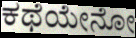
ಕಥೆಯೇನೋ